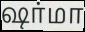
ஷர்மா